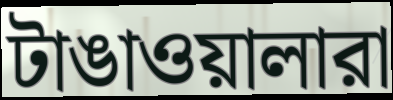
টাঙাওয়ালারা